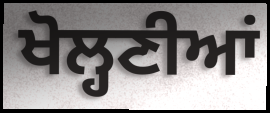
ਖੋਲ੍ਹਣੀਆਂ